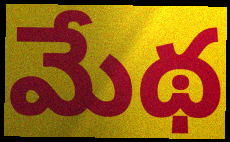
మేథ